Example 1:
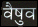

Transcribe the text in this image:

वैषुव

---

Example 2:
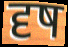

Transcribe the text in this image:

दृष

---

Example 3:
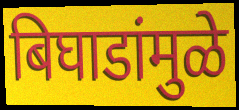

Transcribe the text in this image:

बिघाडांमुळे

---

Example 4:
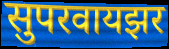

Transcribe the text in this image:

सुपरवायझर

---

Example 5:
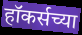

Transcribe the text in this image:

हॉकर्सच्या